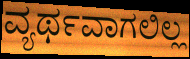
ವ್ಯರ್ಥವಾಗಲಿಲ್ಲ